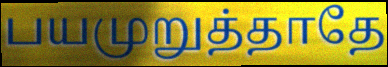
பயமுறுத்தாதே